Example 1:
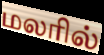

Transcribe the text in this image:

மலரில்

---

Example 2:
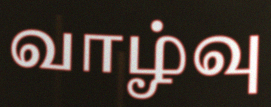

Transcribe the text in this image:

வாழ்வு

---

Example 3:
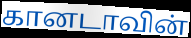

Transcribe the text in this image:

கானடாவின்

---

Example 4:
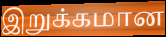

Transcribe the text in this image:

இறுக்கமான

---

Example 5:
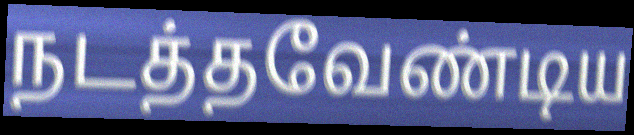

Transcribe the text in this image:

நடத்தவேண்டிய